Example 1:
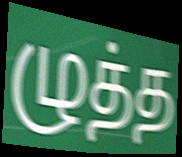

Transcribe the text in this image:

ழுத்த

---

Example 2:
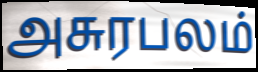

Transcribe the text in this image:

அசுரபலம்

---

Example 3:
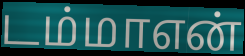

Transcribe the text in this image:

டம்மாஎன்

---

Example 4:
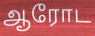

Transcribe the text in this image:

ஆரோட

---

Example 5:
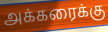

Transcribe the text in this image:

அக்கரைக்கு